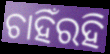
ଚାହିଁରହି